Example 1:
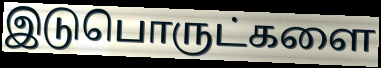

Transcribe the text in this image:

இடுபொருட்களை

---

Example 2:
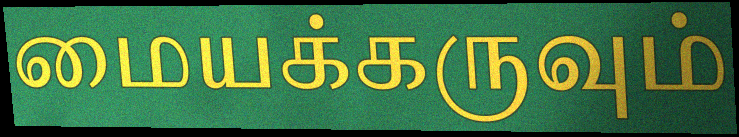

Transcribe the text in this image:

மையக்கருவும்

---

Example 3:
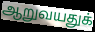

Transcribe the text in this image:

ஆறுவயதுக்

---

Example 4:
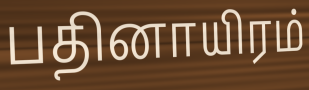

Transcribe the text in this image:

பதினாயிரம்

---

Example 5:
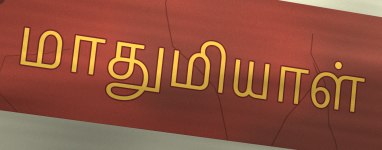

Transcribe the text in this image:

மாதுமியாள்